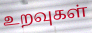
உறவுகள்